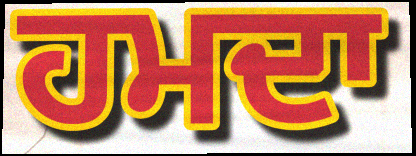
ਹਮਦਾ